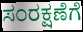
ಸಂರಕ್ಷಣೆಗೆ